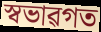
স্বভাৱগত